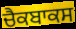
ਚੈਕਬਾਕਸ